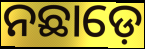
ନଛାଡ଼େ